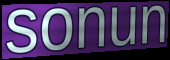
sonun